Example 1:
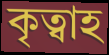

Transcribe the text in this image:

কৃত্বাহ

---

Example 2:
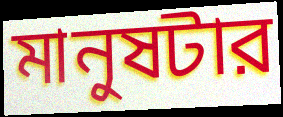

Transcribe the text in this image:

মানুষটার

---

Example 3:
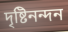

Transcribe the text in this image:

দৃষ্টিনন্দন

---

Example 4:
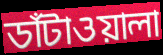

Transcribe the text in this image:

ডাঁটাওয়ালা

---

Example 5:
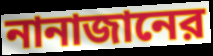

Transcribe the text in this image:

নানাজানের